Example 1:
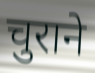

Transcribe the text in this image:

चुराने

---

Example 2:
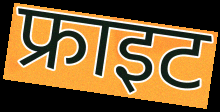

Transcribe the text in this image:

फ्राइट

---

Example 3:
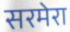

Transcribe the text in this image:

सरमेरा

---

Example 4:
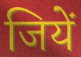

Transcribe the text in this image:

जियें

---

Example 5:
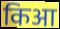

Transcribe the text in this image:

किआ